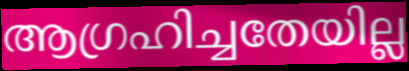
ആഗ്രഹിച്ചതേയില്ല